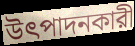
উৎপাদনকারী